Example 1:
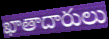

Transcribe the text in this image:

ఖాతాదారులు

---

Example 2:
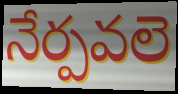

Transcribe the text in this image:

నేర్పవలె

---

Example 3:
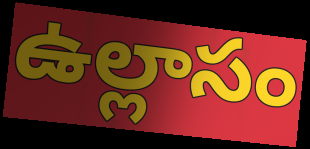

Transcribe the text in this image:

ఉల్లాసం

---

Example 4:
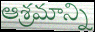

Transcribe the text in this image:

ఆశ్రమాన్ని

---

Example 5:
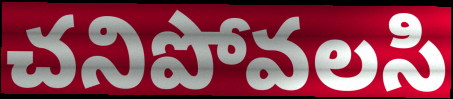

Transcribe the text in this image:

చనిపోవలసి